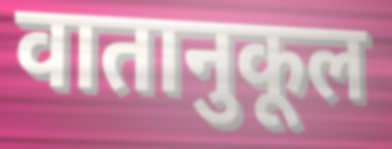
वातानुकूल